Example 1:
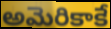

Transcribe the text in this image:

అమెరికాకే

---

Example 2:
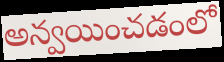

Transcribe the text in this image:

అన్వయించడంలో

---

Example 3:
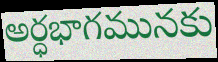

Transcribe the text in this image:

అర్ధభాగమునకు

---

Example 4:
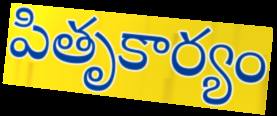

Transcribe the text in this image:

పితృకార్యం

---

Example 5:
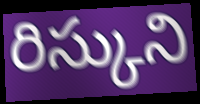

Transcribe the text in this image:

రిస్కుని